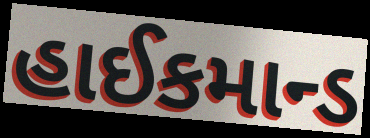
હાઈકમાન્ડ